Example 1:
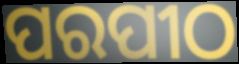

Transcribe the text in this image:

ପରପୀଠ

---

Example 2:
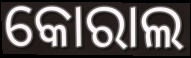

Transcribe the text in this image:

କୋରାଲ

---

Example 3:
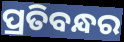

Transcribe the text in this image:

ପ୍ରତିବନ୍ଧର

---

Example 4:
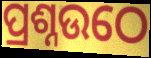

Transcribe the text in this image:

ପ୍ରଶ୍ନଉଠେ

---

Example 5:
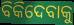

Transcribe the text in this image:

ବିକିଦେବାକୁ